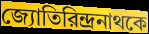
জ্যোতিরিন্দ্রনাথকে